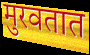
मुरवतात